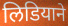
लिडियाने